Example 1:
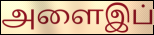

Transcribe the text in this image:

அளைஇப்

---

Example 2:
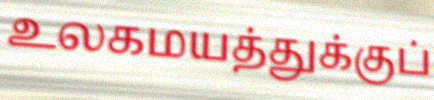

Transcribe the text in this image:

உலகமயத்துக்குப்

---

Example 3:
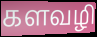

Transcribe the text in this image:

களவழி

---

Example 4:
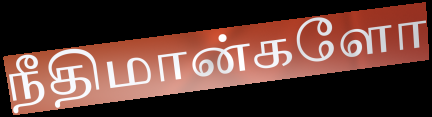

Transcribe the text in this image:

நீதிமான்களோ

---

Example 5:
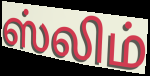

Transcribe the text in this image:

ஸ்லிம்